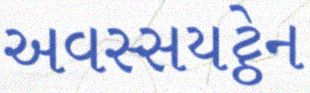
અવસ્સયટ્ઠેન